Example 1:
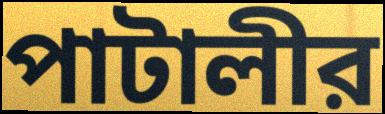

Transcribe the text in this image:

পাটালীর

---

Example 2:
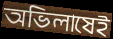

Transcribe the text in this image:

অভিলাষেই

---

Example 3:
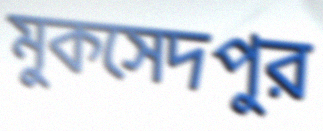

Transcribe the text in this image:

মুকসেদপুর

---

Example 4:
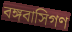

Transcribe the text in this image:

বঙ্গবাসিগণ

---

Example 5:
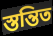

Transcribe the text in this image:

স্তন্তিত